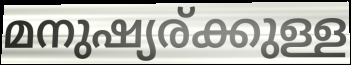
മനുഷ്യര്ക്കുള്ള